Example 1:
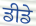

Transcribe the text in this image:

ਡੀਡੇ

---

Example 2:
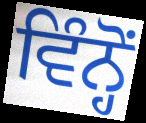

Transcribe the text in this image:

ਵਿੰਨ੍ਹੋਂ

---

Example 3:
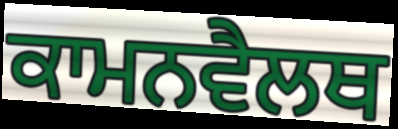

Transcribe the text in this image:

ਕਾਮਨਵੈਲਥ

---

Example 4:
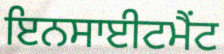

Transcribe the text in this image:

ਇਨਸਾਈਟਮੈਂਟ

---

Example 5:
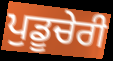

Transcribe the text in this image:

ਪੁਡੂਚੇਰੀ